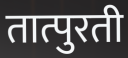
तात्पुरती